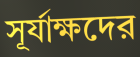
সূর্যাক্ষদের